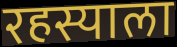
रहस्याला